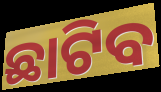
ଛାଟିବ